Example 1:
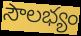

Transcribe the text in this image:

సౌలభ్యం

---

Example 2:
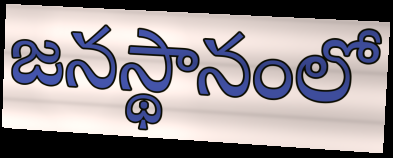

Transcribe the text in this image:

జనస్థానంలో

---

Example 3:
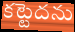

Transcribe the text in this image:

కట్టెదను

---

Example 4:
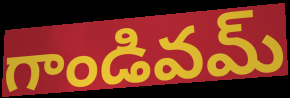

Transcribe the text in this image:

గాండివమ్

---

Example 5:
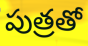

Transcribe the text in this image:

పుత్రతో